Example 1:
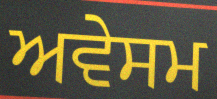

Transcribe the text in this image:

ਅਵੇਸਮ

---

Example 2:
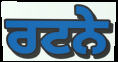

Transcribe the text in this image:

ਰਟਨੇ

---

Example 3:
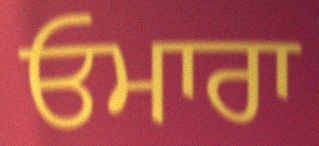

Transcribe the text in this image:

ਓਮਾਰਾ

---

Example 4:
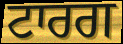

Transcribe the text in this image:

ਟਾਰਗ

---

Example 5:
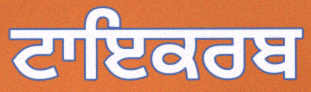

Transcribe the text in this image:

ਟਾਇਕਰਬ